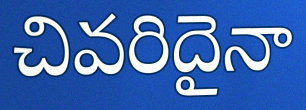
చివరిదైనా